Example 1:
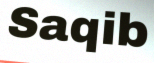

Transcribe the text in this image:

Saqib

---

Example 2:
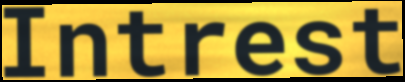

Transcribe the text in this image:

Intrest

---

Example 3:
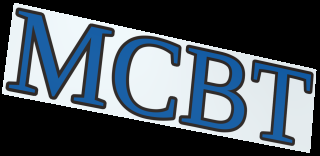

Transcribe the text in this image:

MCBT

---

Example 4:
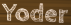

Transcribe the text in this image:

Yoder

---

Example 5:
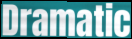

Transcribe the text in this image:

Dramatic